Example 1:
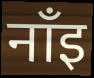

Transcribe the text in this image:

नाँइ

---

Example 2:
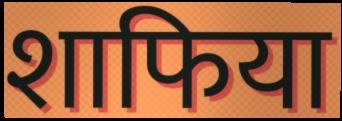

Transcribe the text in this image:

शाफिया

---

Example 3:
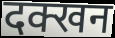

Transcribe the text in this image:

दक्खन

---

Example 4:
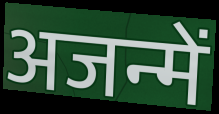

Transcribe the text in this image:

अजन्में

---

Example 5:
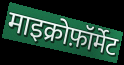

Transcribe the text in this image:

माइक्रोफ़ॉर्मेट